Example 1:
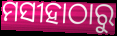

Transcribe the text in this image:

ମସୀହାଠାରୁ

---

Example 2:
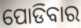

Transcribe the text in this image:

ପୋଡିବାର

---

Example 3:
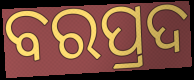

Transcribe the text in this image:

ବରପ୍ରଦ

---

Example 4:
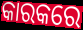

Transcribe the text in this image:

କାରକରେ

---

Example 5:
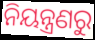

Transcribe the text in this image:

ନିୟନ୍ତ୍ରଣରୁ